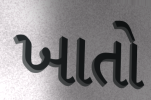
ખાતો